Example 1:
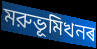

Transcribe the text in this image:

মৰুভূমিখনৰ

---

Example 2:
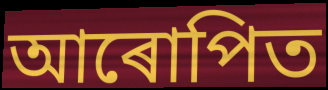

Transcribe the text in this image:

আৰোপিত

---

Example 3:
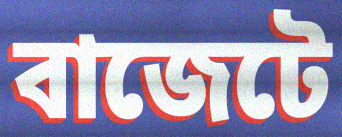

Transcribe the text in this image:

বাজেটে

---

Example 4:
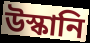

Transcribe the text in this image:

উস্কানি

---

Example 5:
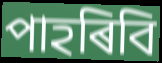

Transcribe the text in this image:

পাহৰিবি